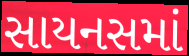
સાયનસમાં